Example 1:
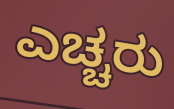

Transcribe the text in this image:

ಎಚ್ಚರು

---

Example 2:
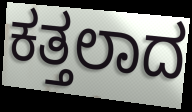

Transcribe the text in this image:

ಕತ್ತಲಾದ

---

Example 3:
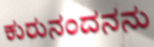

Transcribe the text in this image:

ಕುರುನಂದನನು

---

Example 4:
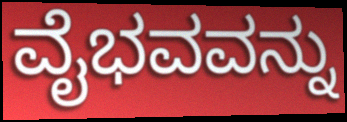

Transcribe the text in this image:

ವೈಭವವನ್ನು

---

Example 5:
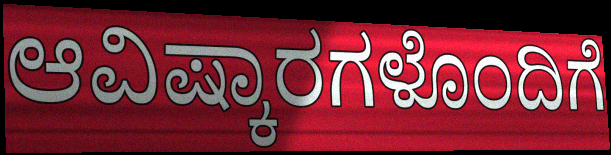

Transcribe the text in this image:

ಆವಿಷ್ಕಾರಗಳೊಂದಿಗೆ